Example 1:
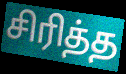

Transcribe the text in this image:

சிரித்த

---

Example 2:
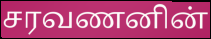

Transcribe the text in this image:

சரவணனின்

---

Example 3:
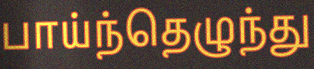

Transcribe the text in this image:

பாய்ந்தெழுந்து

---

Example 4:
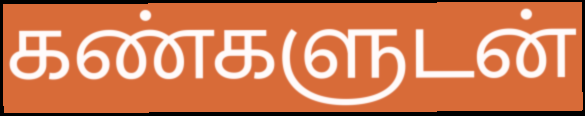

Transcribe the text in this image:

கண்களுடன்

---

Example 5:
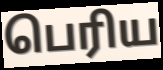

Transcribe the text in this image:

பெரிய